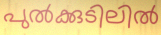
പുൽക്കുടിലിൽ